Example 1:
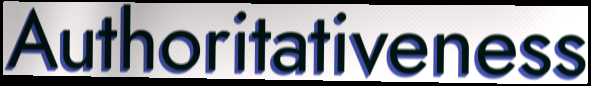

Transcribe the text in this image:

Authoritativeness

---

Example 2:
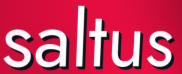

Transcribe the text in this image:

saltus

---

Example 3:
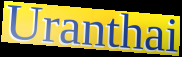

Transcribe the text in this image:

Uranthai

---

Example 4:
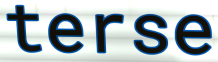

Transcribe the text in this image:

terse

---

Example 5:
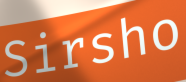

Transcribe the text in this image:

Sirsho